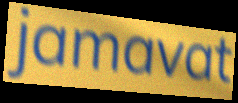
jamavat